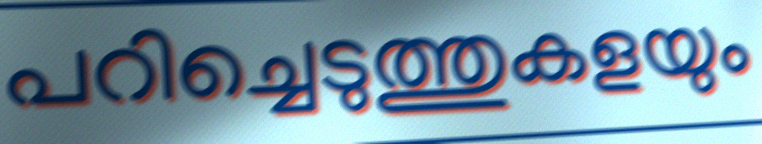
പറിച്ചെടുത്തുകളയും